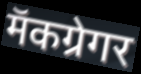
मॅकग्रेगर